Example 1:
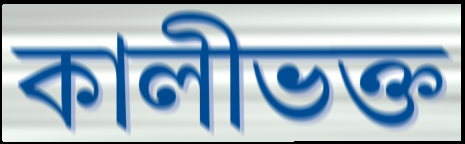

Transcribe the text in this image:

কালীভক্ত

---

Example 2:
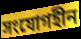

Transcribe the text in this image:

সংযোগহীন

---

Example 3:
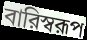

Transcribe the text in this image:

বারিস্বরূপ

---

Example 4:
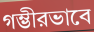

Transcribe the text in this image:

গম্ভীরভাবে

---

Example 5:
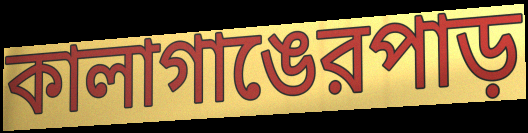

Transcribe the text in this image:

কালাগাঙেরপাড়